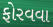
ફોરવવા